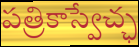
పత్రికాస్వేచ్ఛ